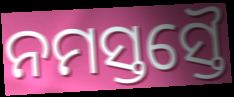
ନମସ୍ତସ୍ତୈ